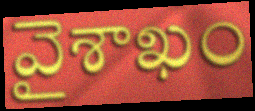
వైశాఖం